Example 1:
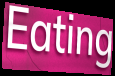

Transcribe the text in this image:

Eating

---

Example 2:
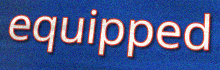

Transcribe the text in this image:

equipped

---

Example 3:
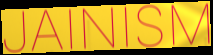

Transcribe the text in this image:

JAINISM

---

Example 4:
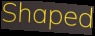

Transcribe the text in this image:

Shaped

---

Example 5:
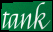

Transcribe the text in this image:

tank